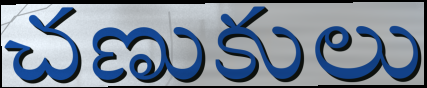
చణుకులు